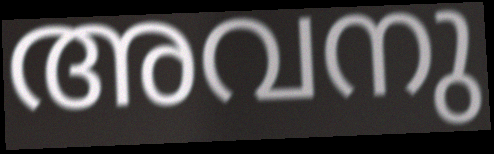
അവനു